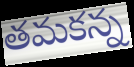
తమకన్న